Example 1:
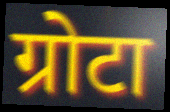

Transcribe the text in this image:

ग्रोटा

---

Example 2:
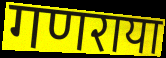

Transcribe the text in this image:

गणराया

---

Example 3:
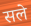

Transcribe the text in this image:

सले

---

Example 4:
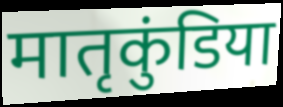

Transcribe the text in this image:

मातृकुंडिया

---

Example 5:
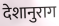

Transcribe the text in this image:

देशानुराग